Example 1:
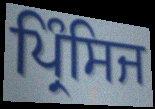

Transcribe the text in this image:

ਪ੍ਰਿੰਸਿਜ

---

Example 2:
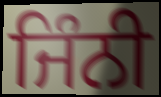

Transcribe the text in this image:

ਜਿੰਨੀ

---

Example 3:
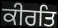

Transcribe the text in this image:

ਕੀਰਤਿ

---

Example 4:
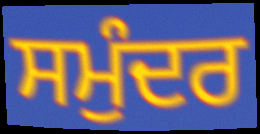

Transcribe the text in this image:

ਸਮੁੰਦਰ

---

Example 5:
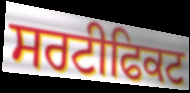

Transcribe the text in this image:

ਸਰਟੀਫਿਕਟ